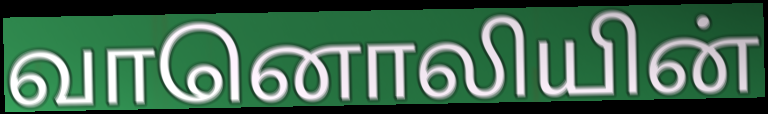
வானொலியின்